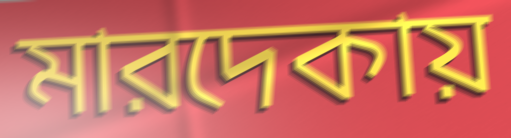
মারদেকায়